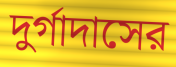
দুর্গাদাসের